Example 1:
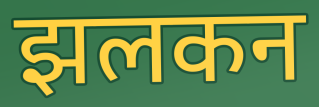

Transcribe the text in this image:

झलकन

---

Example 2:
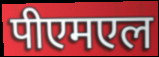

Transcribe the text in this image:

पीएमएल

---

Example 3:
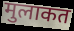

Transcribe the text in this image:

मुलाकत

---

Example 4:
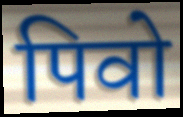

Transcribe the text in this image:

पिवो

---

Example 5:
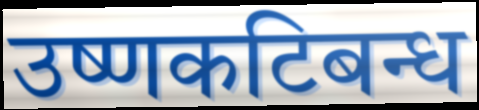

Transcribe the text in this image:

उष्णकटिबन्ध